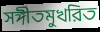
সঙ্গীতমুখরিত